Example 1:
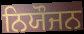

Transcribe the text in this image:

ਨਿਯੌਜਨ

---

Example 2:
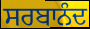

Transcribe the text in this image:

ਸਰਬਾਨੰਦ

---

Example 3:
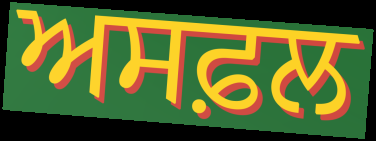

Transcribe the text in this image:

ਅਸਫ਼ਲ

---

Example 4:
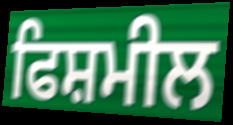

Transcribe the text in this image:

ਫਿਸ਼ਮੀਲ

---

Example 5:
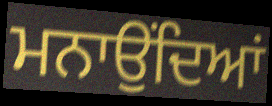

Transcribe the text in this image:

ਮਨਾਉਂਦਿਆਂ